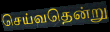
செய்வதென்று